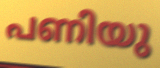
പണിയു